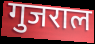
गुजराल